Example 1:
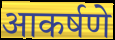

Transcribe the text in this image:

आकर्षणे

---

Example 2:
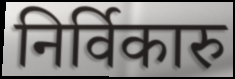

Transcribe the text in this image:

निर्विकारु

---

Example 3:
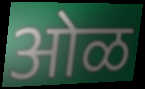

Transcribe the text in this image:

ओळ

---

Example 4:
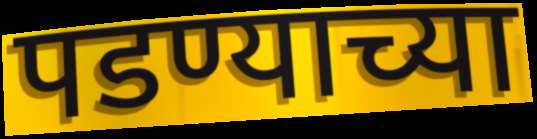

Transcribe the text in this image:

पडण्याच्या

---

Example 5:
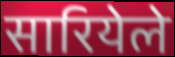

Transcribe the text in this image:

सारियेले